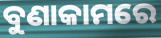
ବୁଣାକାମରେ